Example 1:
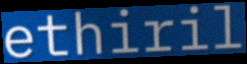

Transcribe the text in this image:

ethiril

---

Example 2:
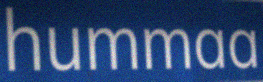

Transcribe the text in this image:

hummaa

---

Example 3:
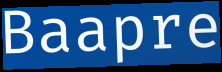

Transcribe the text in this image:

Baapre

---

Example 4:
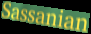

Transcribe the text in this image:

Sassanian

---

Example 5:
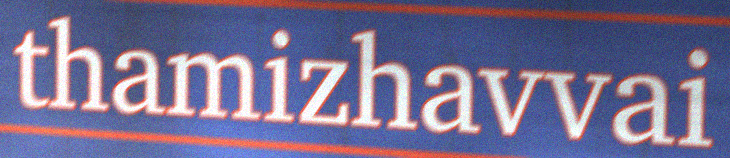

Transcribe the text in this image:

thamizhavvai